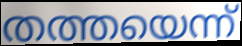
തത്തയെന്ന്